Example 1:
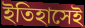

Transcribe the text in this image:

ইতিহাসেই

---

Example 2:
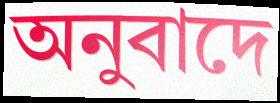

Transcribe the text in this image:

অনুবাদে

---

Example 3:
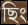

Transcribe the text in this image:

ছিং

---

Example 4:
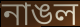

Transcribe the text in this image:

নাঙল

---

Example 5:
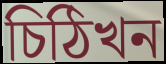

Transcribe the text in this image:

চিঠিখন